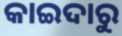
କାଇଦାରୁ